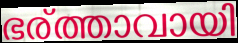
ഭര്ത്താവായി